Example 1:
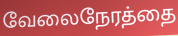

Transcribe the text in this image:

வேலைநேரத்தை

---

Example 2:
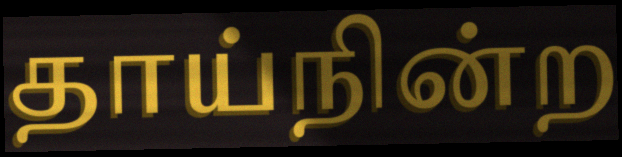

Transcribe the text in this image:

தாய்நின்ற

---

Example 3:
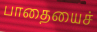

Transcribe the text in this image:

பாதையைச்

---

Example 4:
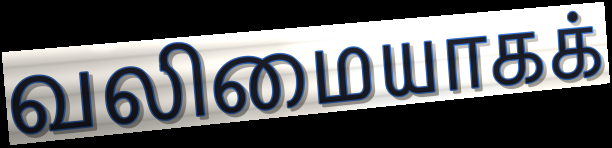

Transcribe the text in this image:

வலிமையாகக்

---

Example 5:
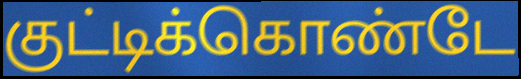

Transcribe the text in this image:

குட்டிக்கொண்டே